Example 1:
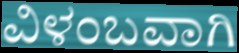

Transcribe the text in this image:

ವಿಳಂಬವಾಗಿ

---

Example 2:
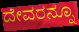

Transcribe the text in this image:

ದೇವರನ್ನೂ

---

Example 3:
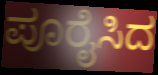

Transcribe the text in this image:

ಪೂರೈಸಿದ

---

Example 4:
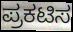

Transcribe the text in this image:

ಪ್ರಕಟಿಸ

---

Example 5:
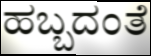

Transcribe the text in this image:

ಹಬ್ಬದಂತೆ